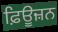
ਫ਼ਿਊਜ਼ਨ